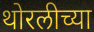
थोरलीच्या